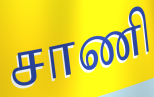
சாணி